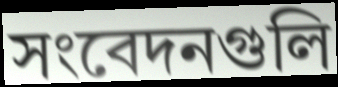
সংবেদনগুলি